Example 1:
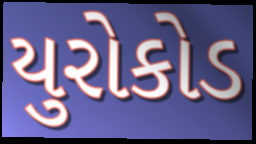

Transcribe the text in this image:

યુરોકોડ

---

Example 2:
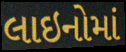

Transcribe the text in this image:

લાઇનોમાં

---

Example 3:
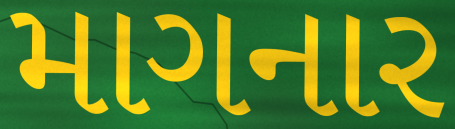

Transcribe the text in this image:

માગનાર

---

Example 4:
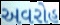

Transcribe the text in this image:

અવરોહ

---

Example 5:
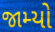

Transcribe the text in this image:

જામ્યો